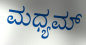
ಮಧ್ಯಮ್